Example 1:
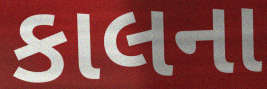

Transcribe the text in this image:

કાલના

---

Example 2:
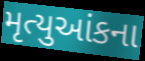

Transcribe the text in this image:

મૃત્યુઆંકના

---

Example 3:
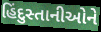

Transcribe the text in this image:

હિંદુસ્તાનીઓને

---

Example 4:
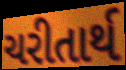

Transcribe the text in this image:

ચરીતાર્થ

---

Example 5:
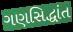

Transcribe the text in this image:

ગણસિદ્ધાંત